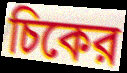
চিকের